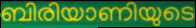
ബിരിയാണിയുടെ